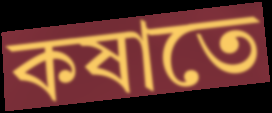
কষাতে